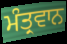
ਮੰਤ੍ਰਵਾਨ